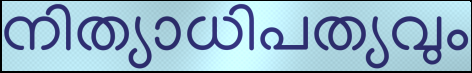
നിത്യാധിപത്യവും